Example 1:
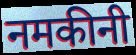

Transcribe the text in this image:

नमकीनी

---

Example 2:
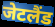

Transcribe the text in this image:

जेटलैंड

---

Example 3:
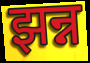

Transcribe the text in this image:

झन्न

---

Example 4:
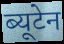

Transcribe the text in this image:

ब्यूटेन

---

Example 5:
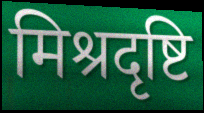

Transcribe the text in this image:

मिश्रदृष्टि